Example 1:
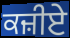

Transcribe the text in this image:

ਕਜ਼ੀਏ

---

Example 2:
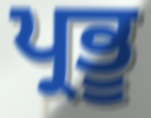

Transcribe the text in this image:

ਪ੍ਰਭੂ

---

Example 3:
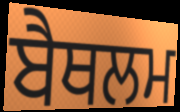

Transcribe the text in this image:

ਬੈਥਲਮ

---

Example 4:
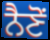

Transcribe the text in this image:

ਨੈਣੋਂ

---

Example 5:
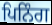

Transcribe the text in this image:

ਪਿਨਿੰਗ